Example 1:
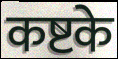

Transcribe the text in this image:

कष्टके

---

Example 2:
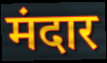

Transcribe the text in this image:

मंदार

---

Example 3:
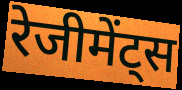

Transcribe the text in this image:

रेजीमेंट्स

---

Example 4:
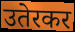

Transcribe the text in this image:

उतेरकर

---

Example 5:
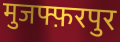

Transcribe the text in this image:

मुजफ्फ़रपुर